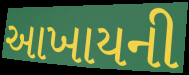
આખાયની